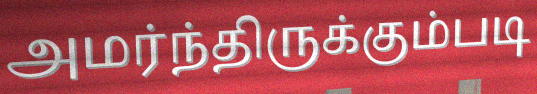
அமர்ந்திருக்கும்படி